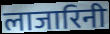
लाजारिनी